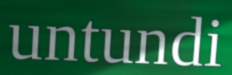
untundi